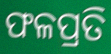
ଫଳପ୍ରତି